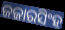
ଜଜାରସିଂହ